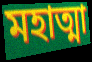
মহাত্মা